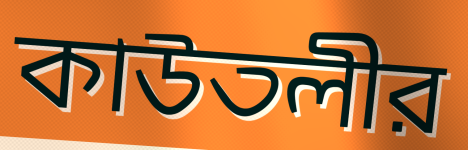
কাউতলীর